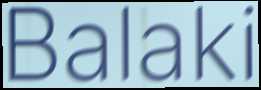
Balaki